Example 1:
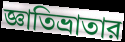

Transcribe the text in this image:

জ্ঞাতিভ্রাতার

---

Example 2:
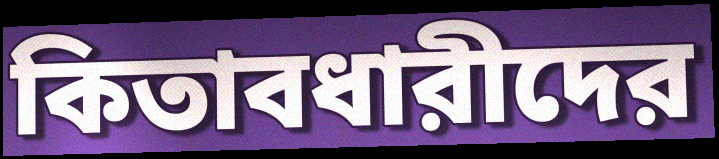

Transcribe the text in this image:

কিতাবধারীদের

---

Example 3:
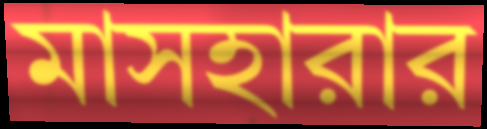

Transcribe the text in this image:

মাসহারার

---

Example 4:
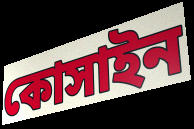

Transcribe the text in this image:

কোসাইন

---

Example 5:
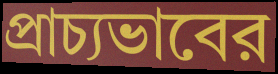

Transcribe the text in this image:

প্রাচ্যভাবের